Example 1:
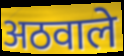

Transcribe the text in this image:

अठवाले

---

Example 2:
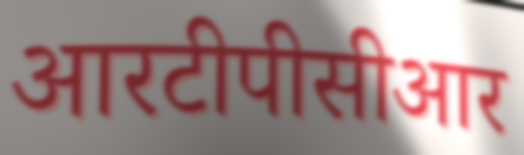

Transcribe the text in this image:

आरटीपीसीआर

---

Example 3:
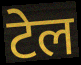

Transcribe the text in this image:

टेल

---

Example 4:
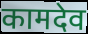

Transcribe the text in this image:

कामदेव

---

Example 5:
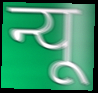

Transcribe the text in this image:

न्यू